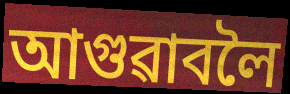
আগুৱাবলৈ